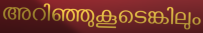
അറിഞ്ഞുകൂടെങ്കിലും